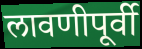
लावणीपूर्वी